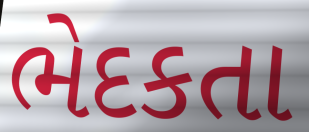
ભેદકતા